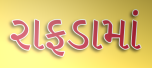
રાફડામાં